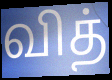
வித்